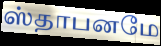
ஸ்தாபனமே